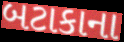
બટાકાના